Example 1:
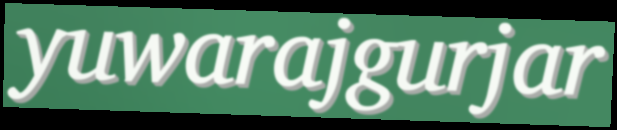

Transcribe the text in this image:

yuwarajgurjar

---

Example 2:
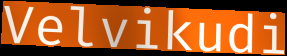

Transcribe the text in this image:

Velvikudi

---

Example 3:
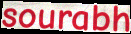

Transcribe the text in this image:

sourabh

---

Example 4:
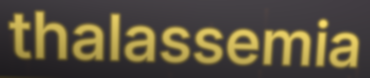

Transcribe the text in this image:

thalassemia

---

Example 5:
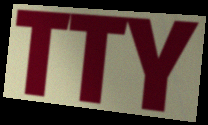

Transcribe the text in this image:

TTY